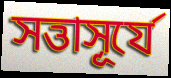
সত্তাসূর্যে